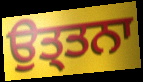
ਉਤ੍ਤਨਾ